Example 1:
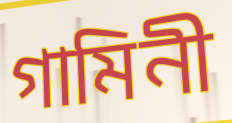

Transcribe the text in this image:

গামিনী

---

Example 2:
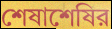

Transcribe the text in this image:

শেষাশেষির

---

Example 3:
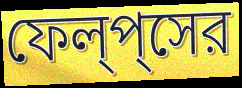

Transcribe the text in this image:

ফেল্‌প্‌সের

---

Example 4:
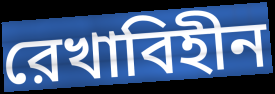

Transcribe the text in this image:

রেখাবিহীন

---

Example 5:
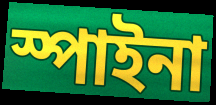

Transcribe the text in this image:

স্পাইনা